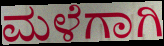
ಮಳೆಗಾಗಿ